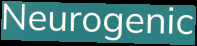
Neurogenic